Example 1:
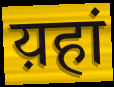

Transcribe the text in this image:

य़हां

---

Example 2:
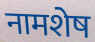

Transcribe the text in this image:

नामशेष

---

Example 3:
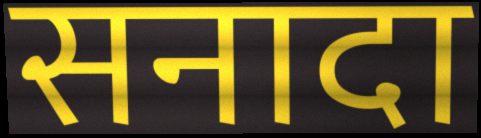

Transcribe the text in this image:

सनादा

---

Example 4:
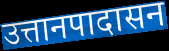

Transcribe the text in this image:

उत्तानपादासन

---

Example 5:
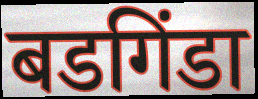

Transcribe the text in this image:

बडगिंडा